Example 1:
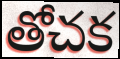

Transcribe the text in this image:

తోచక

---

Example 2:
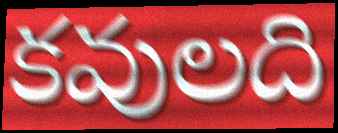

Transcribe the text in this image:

కవులది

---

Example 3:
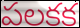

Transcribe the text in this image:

పలకక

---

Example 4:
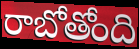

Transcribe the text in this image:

రాబోతోంది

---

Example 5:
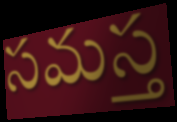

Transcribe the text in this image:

సమస్త